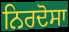
ਨਿਰਦੋਸਾ